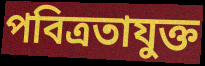
পবিত্রতাযুক্ত